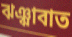
ঝঞ্ঝাবাত